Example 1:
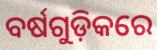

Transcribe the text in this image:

ବର୍ଷଗୁଡ଼ିକରେ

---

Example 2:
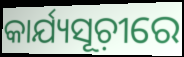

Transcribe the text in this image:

କାର୍ଯ୍ୟସୂଚ଼ୀରେ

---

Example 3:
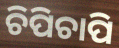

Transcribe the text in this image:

ଚିପିଚାପି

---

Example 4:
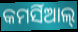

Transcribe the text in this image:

କମର୍ସିଆଲ୍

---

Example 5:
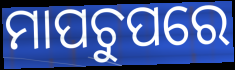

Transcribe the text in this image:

ମାପଚୁପରେ